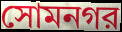
সোমনগর